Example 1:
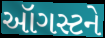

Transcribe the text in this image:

ઑગસ્ટને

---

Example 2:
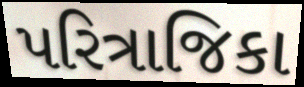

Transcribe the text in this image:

પરિત્રાજિકા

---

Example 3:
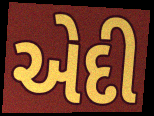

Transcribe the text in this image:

એદી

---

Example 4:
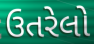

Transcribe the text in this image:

ઉતરેલો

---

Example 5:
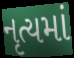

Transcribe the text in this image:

નૃત્યમાં